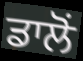
ਡਾਲੋਂ